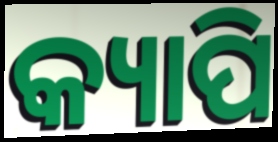
କ୍ୟାପି